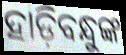
ହାଡ଼ିବନ୍ଧୁଙ୍କ